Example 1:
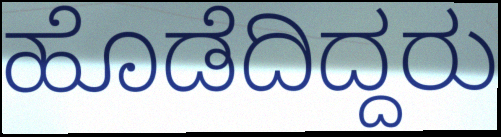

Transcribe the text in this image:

ಹೊಡೆದಿದ್ದರು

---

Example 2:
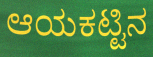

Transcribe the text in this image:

ಆಯಕಟ್ಟಿನ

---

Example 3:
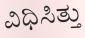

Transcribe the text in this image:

ವಿಧಿಸಿತ್ತು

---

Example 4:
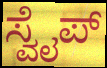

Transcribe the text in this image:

ಸ್ವೈಪ್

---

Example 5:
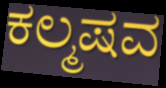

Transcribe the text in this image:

ಕಲ್ಮಷವ